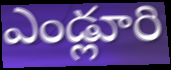
ఎండ్లూరి